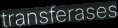
transferases